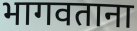
भागवताना